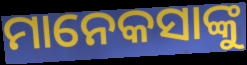
ମାନେକସାଙ୍କୁ